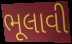
ભૂલાવી